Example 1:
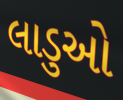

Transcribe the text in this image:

લાડુઓ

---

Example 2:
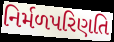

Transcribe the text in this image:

નિર્મળપરિણતિ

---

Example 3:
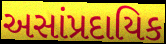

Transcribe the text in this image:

અસાંપ્રદાયિક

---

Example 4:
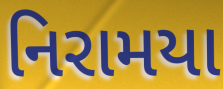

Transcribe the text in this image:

નિરામયા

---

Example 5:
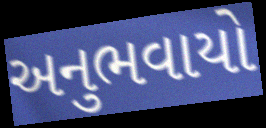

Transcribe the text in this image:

અનુભવાયો